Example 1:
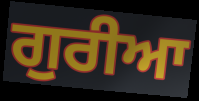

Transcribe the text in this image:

ਗੁਰੀਆ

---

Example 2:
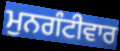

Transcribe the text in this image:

ਮੁਨਗੰਟੀਵਾਰ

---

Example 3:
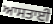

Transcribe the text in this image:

ਆਸਤਾਈ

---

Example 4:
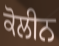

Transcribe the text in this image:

ਕੋਲੀਨ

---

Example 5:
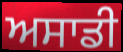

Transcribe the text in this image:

ਅਸਾਡੀ